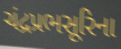
ચંદ્રપ્રભસૂરિના